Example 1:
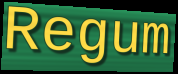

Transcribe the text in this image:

Regum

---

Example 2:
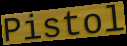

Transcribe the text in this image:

Pistol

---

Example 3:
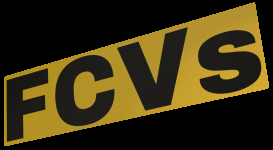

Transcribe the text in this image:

FCVs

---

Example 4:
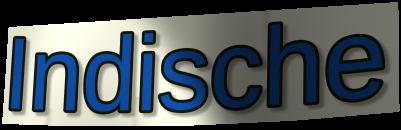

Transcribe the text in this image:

Indische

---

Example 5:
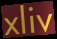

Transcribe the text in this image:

xliv